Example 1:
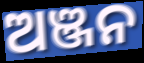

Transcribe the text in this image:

ଅଞ୍ଜନ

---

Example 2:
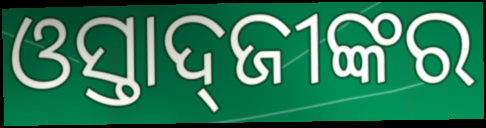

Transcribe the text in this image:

ଓସ୍ତାଦ୍‌ଜୀଙ୍କର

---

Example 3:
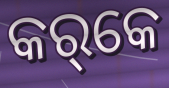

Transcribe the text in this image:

କର୍‌କେ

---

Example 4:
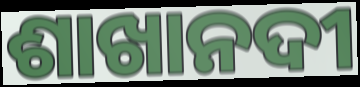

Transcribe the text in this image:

ଶାଖାନଦୀ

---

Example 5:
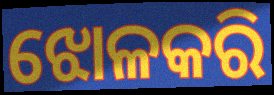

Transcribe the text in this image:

ଝୋଳକରି